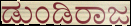
ಡುಂಡಿರಾಜ